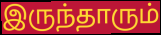
இருந்தாரும்